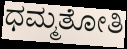
ಧಮ್ಮತೋತಿ